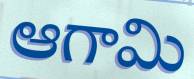
ఆగామి